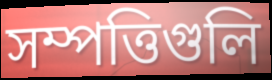
সম্পত্তিগুলি